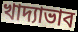
খাদ্যাভাব